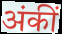
अंकीं